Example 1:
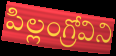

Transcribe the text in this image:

పిల్లంగ్రోవిని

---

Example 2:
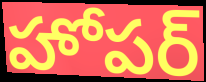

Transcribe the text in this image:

హోపర్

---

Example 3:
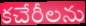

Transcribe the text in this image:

కచేరీలను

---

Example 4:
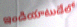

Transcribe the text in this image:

ఇండియాటుడేలో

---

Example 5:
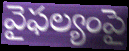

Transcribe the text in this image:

వైఫల్యంపై